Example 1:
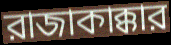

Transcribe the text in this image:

রাজাকাক্কার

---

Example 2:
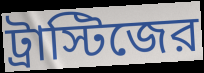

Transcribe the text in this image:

ট্রাস্টিজের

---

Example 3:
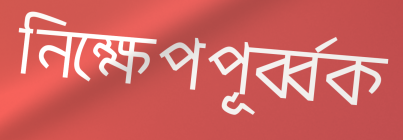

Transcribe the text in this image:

নিক্ষেপপূর্ব্বক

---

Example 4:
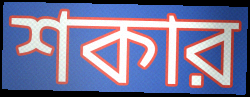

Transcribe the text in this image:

শকার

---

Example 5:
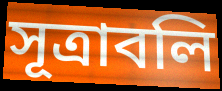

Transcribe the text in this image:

সূত্রাবলি